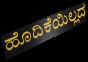
ಹೊದಿಕೆಯಿಲ್ಲದ